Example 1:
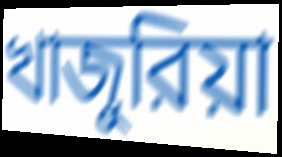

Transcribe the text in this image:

খাজুরিয়া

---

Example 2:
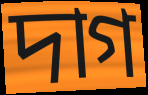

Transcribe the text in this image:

দাগ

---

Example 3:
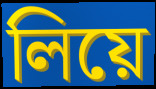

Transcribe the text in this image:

লিয়ে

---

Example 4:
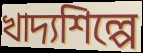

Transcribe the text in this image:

খাদ্যশিল্পে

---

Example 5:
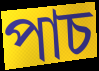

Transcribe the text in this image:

পাচ